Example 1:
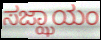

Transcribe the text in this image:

ಸಜ್ಝಾಯಂ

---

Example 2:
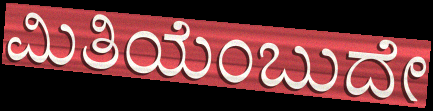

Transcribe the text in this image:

ಮಿತಿಯೆಂಬುದೇ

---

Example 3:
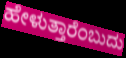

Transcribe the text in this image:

ಹೇಳುತ್ತಾರೆಂಬುದು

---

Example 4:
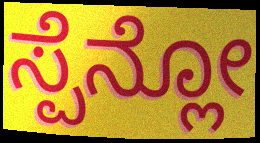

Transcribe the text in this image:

ಸ್ಪೆನ್ಲೋ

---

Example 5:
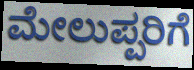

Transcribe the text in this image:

ಮೇಲುಪ್ಪರಿಗೆ